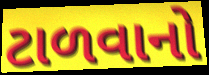
ટાળવાનો